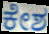
ಕೇಶ